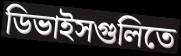
ডিভাইসগুলিতে